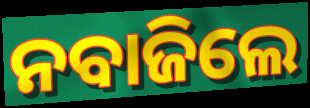
ନବାଜିଲେ